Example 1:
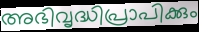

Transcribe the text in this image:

അഭിവൃദ്ധിപ്രാപിക്കും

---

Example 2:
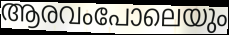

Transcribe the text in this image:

ആരവംപോലെയും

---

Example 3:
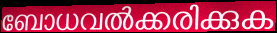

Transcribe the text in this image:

ബോധവൽക്കരിക്കുക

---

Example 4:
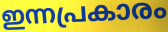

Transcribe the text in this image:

ഇന്നപ്രകാരം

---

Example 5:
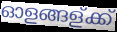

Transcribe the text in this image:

ഓളങ്ങള്ക്ക്